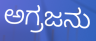
ಅಗ್ರಜನು